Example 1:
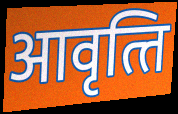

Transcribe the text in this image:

आवृत्‍ति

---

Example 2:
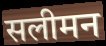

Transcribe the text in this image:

सलीमन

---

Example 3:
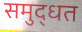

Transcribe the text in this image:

समुद्धत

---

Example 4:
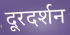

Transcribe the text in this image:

दूरदर्शन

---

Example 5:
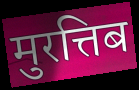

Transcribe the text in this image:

मुरत्तिब